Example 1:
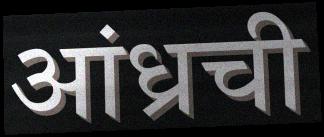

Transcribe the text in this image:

आंध्रची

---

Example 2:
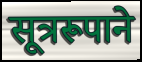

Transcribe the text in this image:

सूत्ररूपाने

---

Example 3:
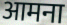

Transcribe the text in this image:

आमना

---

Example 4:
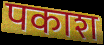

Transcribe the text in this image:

पकाश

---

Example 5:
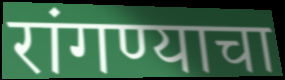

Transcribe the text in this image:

रांगण्याचा